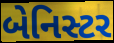
બેનિસ્ટર